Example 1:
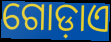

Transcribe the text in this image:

ଗୋଡ଼ାଏ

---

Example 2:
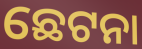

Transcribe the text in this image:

ଛେଟନା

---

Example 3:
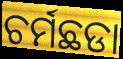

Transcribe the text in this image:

ଚର୍ମଛଡା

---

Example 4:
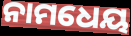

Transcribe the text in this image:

ନାମଧେୟ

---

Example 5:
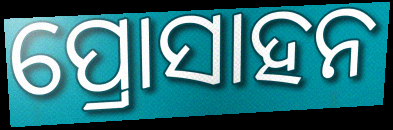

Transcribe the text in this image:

ପ୍ରୋସାହନ